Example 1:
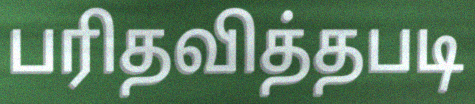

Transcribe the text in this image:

பரிதவித்தபடி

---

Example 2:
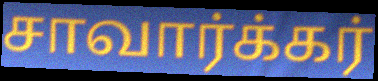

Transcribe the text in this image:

சாவார்க்கர்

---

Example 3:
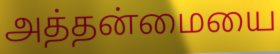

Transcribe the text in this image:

அத்தன்மையை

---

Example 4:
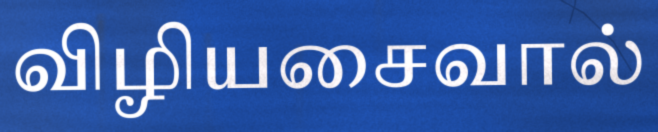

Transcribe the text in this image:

விழியசைவால்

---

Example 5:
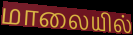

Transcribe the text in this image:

மாலையில்